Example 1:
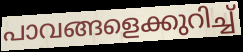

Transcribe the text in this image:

പാവങ്ങളെക്കുറിച്ച്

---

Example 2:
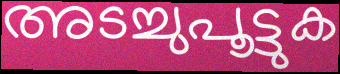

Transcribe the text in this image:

അടച്ചുപൂട്ടുക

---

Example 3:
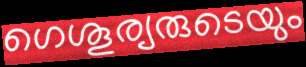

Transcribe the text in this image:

ഗെശൂര്യരുടെയും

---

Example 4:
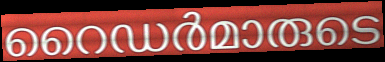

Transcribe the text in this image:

റൈഡർമാരുടെ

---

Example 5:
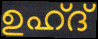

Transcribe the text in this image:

ഉഹ്ദ്